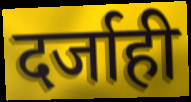
दर्जाही